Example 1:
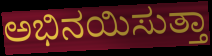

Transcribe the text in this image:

ಅಭಿನಯಿಸುತ್ತಾ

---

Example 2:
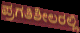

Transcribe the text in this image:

ಪ್ರಗತಿಶೀಲರಲ್ಲಿ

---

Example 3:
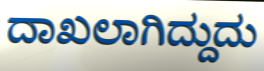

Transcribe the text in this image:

ದಾಖಲಾಗಿದ್ದುದು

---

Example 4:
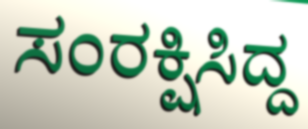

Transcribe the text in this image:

ಸಂರಕ್ಷಿಸಿದ್ದ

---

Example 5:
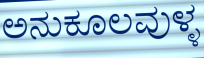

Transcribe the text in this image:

ಅನುಕೂಲವುಳ್ಳ